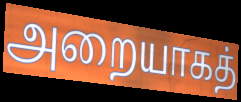
அறையாகத்